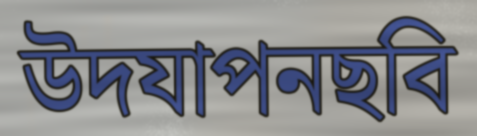
উদযাপনছবি